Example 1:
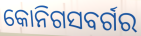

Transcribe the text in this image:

କୋନିଗସବର୍ଗର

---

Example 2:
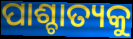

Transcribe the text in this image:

ପାଶ୍ଚାତ୍ୟକୁ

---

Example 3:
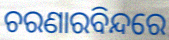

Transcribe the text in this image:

ଚରଣାରବିନ୍ଦରେ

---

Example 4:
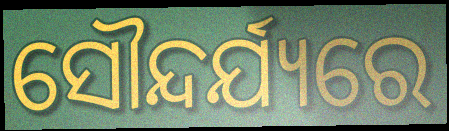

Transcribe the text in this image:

ସୌନ୍ଦର୍ଯ୍ୟରେ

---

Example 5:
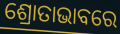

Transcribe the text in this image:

ଶ୍ରୋତାଭାବରେ